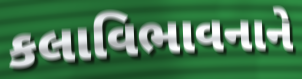
કલાવિભાવનાને